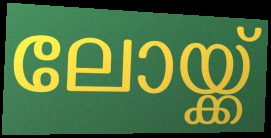
ലോയ്ക്ക്